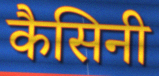
कैसिनी